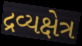
દ્રવ્યક્ષેત્ર